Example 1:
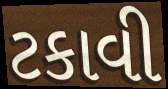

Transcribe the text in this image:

ટકાવી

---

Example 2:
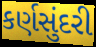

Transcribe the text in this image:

કર્ણસુંદરી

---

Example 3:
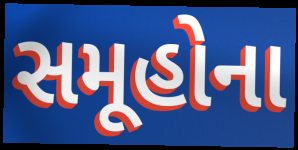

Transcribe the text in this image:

સમૂહોના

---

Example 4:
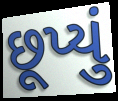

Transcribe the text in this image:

છૂપ્યું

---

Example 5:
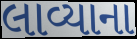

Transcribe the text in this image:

લાવ્યાના